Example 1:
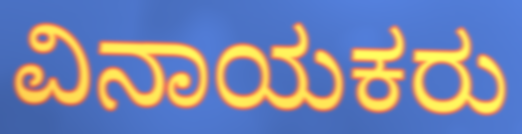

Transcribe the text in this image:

ವಿನಾಯಕರು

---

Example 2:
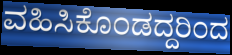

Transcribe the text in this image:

ವಹಿಸಿಕೊಂಡದ್ದರಿಂದ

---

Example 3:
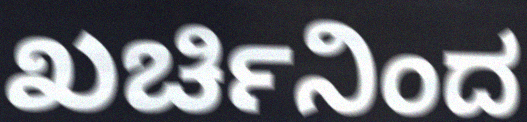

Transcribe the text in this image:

ಖರ್ಚಿನಿಂದ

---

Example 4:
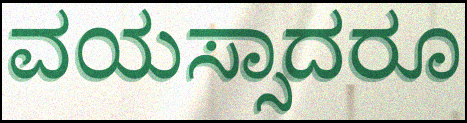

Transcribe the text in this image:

ವಯಸ್ಸಾದರೂ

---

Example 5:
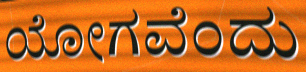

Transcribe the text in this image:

ಯೋಗವೆಂದು